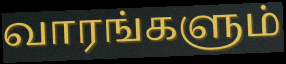
வாரங்களும்